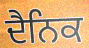
ਦੈਨਿਕ